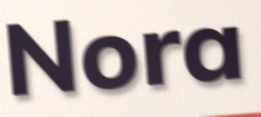
Nora